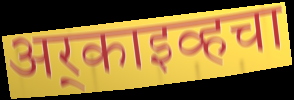
अर्काइव्हचा